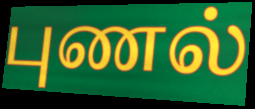
புணல்